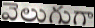
వెలుగుగా